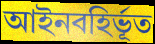
আইনবহির্ভূত